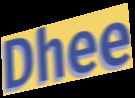
Dhee